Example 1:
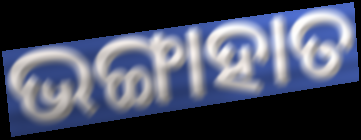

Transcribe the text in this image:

ଭଙ୍ଗାହାତ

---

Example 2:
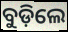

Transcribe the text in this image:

ବୁଡ଼ିଲେ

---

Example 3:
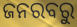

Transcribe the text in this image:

ଜନରବରୁ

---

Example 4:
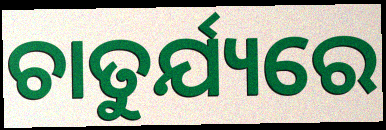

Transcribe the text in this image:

ଚାତୁର୍ଯ୍ୟରେ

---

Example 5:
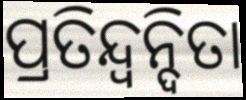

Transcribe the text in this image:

ପ୍ରତିନ୍ଦ୍ବନ୍ଦିତା